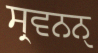
ਸ੍ਰਵਨਨੑ